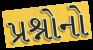
પ્રશ્નોનો